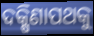
ଦକ୍ଷିଣାପଥକୁ